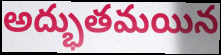
అద్భుతమయిన